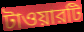
টাওয়ারটি